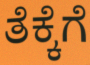
ತೆಕ್ಕೆಗೆ